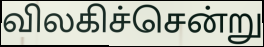
விலகிச்சென்று